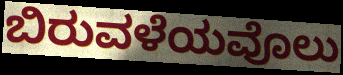
ಬಿರುವಳೆಯವೊಲು